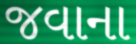
જવાના